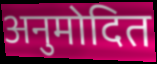
अनुमोदित